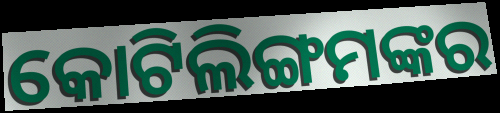
କୋଟିଲିଙ୍ଗମଙ୍କର